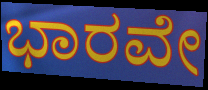
ಭಾರವೇ